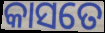
କାସତେ